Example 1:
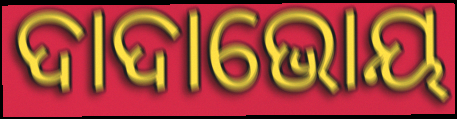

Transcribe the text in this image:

ଦାଦାଭୋୟ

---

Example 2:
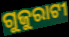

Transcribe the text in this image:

ଗୁଜୁରାଟୀ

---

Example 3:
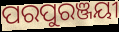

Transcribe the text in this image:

ପରପୁରଞ୍ଜୟୀ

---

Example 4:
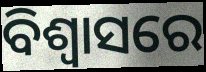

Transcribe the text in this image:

ବିଶ୍ବାସରେ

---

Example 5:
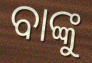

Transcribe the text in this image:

ବାଙ୍କୁ